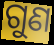
ଗୁଣ